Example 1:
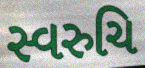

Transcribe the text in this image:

સ્વરુચિ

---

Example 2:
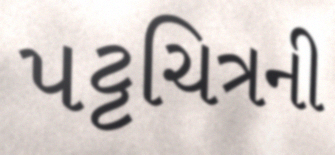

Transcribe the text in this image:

પટ્ટચિત્રની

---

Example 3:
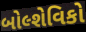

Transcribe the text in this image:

બોલ્શેવિકો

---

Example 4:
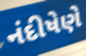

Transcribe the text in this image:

નંદીષેણે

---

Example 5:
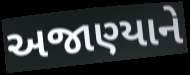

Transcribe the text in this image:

અજાણ્યાને